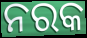
ନରକ